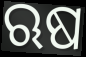
ଋଷ